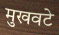
मुखवटे